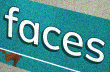
faces